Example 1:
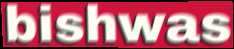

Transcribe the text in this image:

bishwas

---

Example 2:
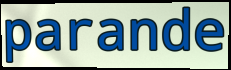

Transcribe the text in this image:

parande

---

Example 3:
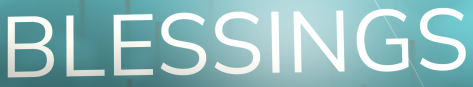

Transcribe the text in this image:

BLESSINGS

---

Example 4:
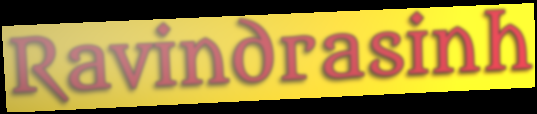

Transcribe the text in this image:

Ravindrasinh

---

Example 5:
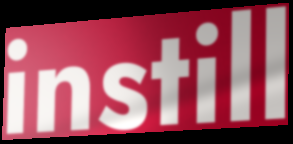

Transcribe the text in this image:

instill